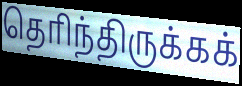
தெரிந்திருக்கக்